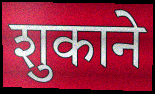
शुकाने